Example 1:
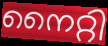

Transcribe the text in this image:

നൈറ്റി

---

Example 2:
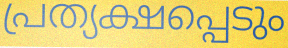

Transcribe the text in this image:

പ്രത്യക്ഷപ്പെടും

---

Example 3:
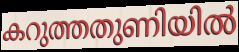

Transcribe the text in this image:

കറുത്തതുണിയിൽ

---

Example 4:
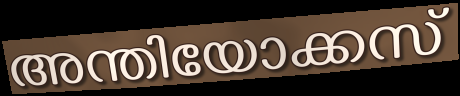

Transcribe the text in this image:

അന്തിയോക്കസ്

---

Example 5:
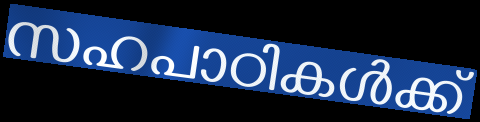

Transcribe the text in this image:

സഹപാഠികൾക്ക്